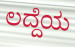
ಲದ್ದೆಯ